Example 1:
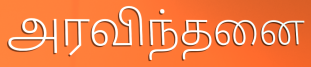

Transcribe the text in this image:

அரவிந்தனை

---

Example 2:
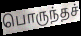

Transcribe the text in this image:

பொருந்தச்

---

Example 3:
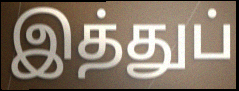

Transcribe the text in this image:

இத்துப்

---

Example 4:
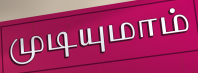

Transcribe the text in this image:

முடியுமாம்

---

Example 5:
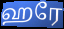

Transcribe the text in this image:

ஹரே